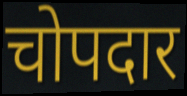
चोपदार